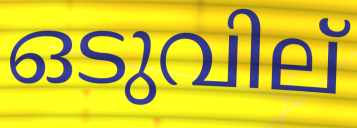
ഒടുവില്